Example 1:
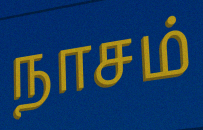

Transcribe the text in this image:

நாசம்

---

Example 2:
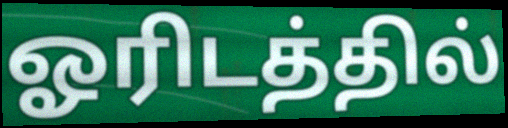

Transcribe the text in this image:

ஓரிடத்தில்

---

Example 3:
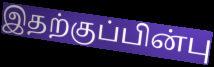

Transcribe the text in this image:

இதற்குப்பின்பு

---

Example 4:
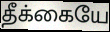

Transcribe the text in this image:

தீக்கையே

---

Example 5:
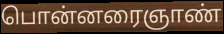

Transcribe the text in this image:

பொன்னரைஞாண்